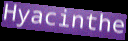
Hyacinthe